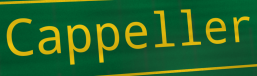
Cappeller